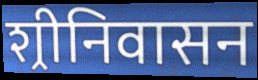
श्रीनिवासन